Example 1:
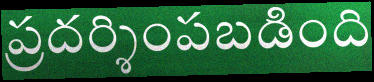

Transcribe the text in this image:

ప్రదర్శింపబడింది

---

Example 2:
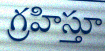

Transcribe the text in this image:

గ్రహిస్తూ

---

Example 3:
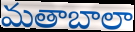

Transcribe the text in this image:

మతాబాలా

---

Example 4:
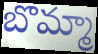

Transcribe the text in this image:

బొమ్మా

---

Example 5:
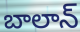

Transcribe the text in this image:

బాలాన్